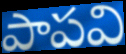
పాపవి